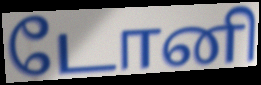
டோனி